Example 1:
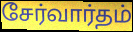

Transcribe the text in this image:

சேர்வார்தம்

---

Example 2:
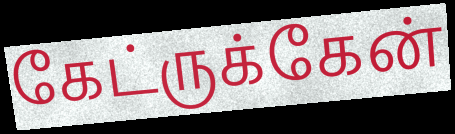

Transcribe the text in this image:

கேட்ருக்கேன்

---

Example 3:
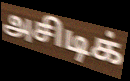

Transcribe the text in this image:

அசிடிக்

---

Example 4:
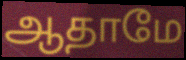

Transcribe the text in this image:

ஆதாமே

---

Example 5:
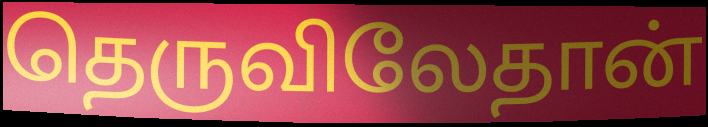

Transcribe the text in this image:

தெருவிலேதான்